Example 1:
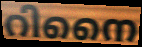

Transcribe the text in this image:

റിനൈ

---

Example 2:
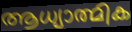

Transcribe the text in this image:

ആധ്യാത്മിക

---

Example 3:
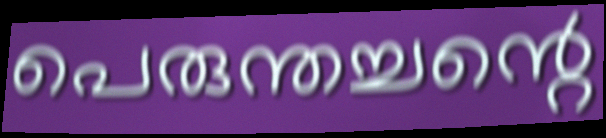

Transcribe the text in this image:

പെരുന്തച്ചന്റെ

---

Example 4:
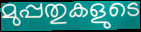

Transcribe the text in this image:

മുപ്പതുകളുടെ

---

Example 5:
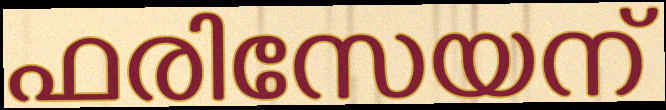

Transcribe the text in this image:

ഫരിസേയന്